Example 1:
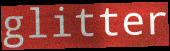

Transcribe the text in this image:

glitter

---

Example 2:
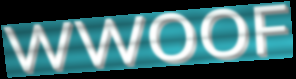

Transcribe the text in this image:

WWOOF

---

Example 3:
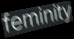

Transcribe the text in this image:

feminity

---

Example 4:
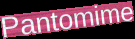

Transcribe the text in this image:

Pantomime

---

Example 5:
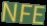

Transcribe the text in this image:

NFE